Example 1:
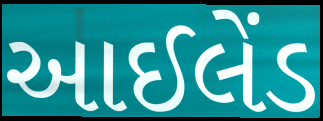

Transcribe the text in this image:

આઈલેંડ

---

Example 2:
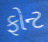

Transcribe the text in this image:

ફોન્ટ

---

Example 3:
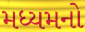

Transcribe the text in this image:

મધ્યમનો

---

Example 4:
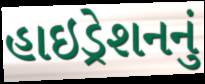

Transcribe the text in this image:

હાઇડ્રેશનનું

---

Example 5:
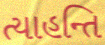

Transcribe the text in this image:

ત્યાહન્તિ